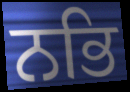
ਨਭਿ